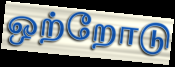
ஒற்றோடு